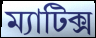
ম্যাটিক্স